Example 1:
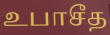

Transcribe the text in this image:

உபாசீத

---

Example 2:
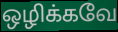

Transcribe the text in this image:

ஒழிக்கவே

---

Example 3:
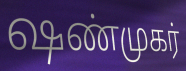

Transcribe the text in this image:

ஷண்முகர்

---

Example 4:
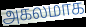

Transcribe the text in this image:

அகலமாக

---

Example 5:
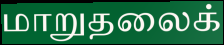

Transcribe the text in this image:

மாறுதலைக்